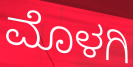
ಮೊಳಗಿ